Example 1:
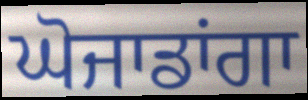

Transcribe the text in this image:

ਘੋਜਾਡਾਂਗਾ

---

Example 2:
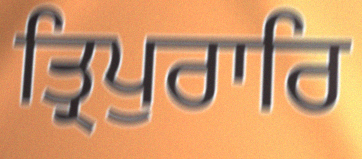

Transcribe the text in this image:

ਤ੍ਰਿਪੁਰਾਰਿ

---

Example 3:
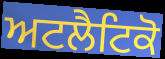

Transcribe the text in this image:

ਅਟਲੈਟਿਕੋ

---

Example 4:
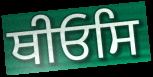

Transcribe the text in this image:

ਥੀਓਸਿ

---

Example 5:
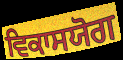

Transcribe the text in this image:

ਵਿਕਾਸਯੋਗ